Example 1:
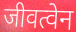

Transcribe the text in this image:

जीवत्वेन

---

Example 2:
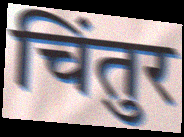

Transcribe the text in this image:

चिंतुर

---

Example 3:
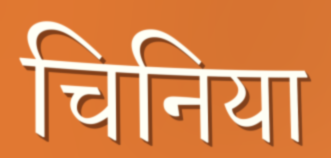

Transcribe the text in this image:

चिनिया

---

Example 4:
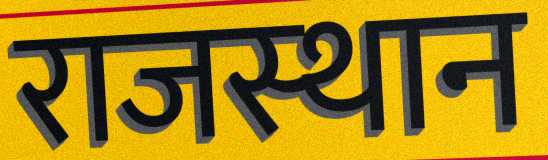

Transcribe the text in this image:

राजस्‍थान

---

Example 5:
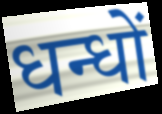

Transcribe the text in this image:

धन्धों